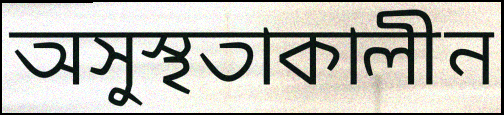
অসুস্থতাকালীন